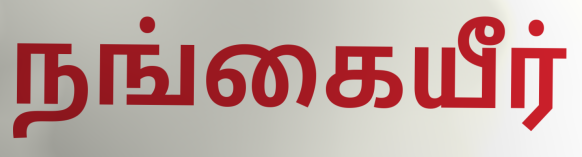
நங்கையீர்